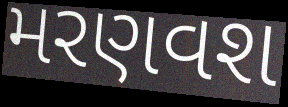
મરણવશ